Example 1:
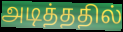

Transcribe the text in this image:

அடித்ததில்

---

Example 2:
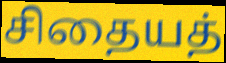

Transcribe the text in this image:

சிதையத்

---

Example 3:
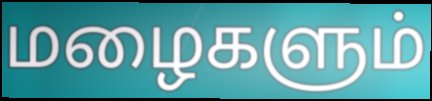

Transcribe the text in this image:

மழைகளும்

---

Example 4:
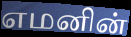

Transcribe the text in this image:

எமனின்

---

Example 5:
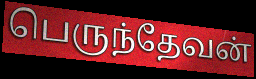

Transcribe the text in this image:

பெருந்தேவன்